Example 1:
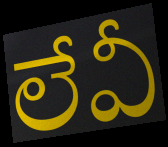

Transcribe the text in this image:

లేవీ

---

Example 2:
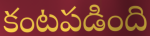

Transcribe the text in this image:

కంటపడింది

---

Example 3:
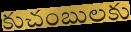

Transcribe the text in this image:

కుచంబులకు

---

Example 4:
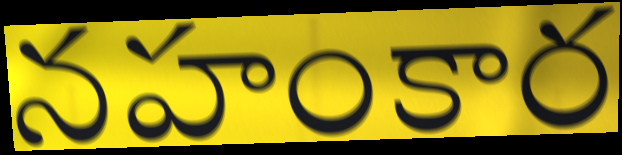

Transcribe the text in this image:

నహంకార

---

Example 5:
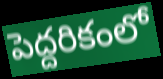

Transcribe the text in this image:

పెద్దరికంలో